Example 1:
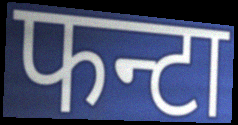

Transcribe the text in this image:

फन्टा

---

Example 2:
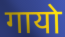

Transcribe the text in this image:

गायो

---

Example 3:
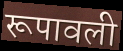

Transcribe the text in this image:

रूपावली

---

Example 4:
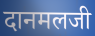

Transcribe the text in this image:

दानमलजी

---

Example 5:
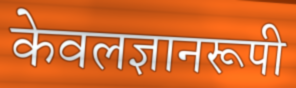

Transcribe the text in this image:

केवलज्ञानरूपी